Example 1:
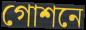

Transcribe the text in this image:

গোশনে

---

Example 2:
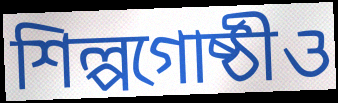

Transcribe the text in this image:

শিল্পগোষ্ঠীও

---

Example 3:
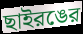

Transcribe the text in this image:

ছাইরঙের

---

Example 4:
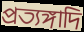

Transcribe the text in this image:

প্রত্যঙ্গাদি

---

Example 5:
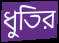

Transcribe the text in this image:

ধুতির